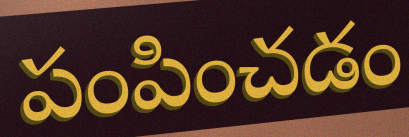
పంపించడం